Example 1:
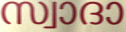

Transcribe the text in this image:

സ്വാദാ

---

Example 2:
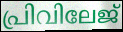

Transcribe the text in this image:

പ്രിവിലേജ്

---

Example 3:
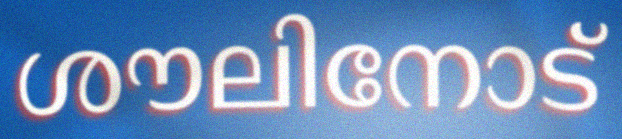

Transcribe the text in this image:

ശൗലിനോട്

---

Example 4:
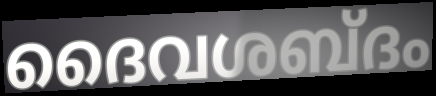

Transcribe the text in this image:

ദൈവശബ്ദം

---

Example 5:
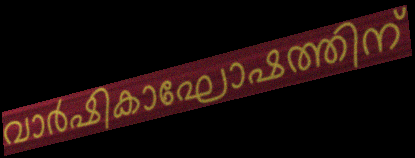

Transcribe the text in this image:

വാർഷികാഘോഷത്തിന്